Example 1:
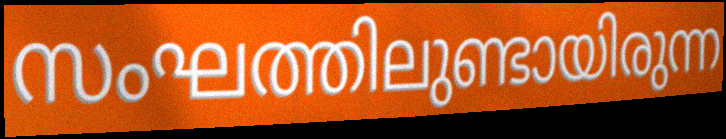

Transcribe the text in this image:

സംഘത്തിലുണ്ടായിരുന്ന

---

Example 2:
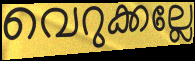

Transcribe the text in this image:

വെറുക്കല്ലേ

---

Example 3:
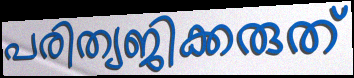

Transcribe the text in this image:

പരിത്യജിക്കരുത്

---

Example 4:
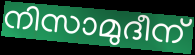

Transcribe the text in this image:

നിസാമുദീന്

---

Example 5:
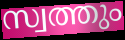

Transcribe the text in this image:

സ്വത്തും